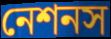
নেশনস